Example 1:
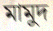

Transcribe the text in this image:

মামুদ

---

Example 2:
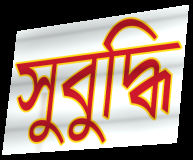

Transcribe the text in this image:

সুবুদ্ধি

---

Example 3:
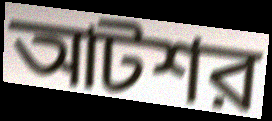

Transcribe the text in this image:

আটশর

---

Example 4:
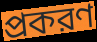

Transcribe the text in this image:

প্রকরণ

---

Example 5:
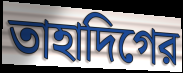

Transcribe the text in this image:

তাহাদিগের